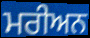
ਮਰੀਅਨ